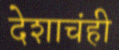
देशाचंही